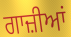
ਗਾਜ਼ੀਆਂ